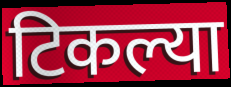
टिकल्या